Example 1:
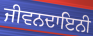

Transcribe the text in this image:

ਜੀਵਨਦਾਇਨੀ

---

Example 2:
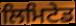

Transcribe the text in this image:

ਲਿਮਿਟੇਡ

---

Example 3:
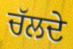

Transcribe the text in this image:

ਚੱਲਦੇ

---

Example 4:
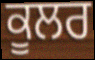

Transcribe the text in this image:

ਕੂਲਰ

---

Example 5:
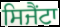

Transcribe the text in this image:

ਸਿਜੈਂਟਾ